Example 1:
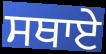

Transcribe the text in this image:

ਸਥਾਏ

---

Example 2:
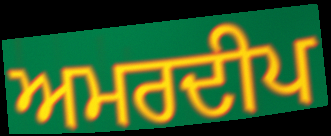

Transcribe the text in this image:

ਅਮਰਦੀਪ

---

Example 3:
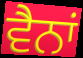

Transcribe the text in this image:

ਵੈਨਾਂ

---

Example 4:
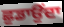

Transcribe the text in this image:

ਛੁਡਾਉਂਦਾ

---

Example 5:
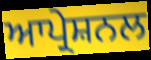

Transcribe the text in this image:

ਆਪ੍ਰੇਸ਼ਨਲ